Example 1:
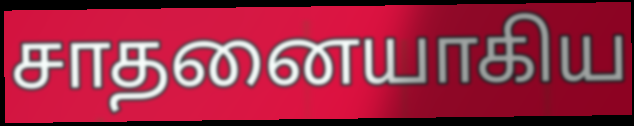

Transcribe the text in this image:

சாதனையாகிய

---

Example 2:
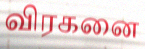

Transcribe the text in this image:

விரகனை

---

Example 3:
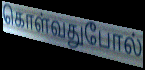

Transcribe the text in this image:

கொள்வதுபோல்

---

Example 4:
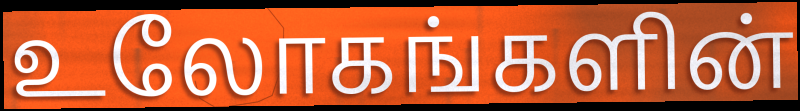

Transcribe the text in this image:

உலோகங்களின்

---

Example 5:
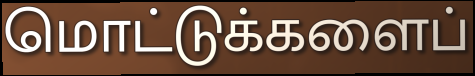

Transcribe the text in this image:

மொட்டுக்களைப்